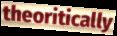
theoritically